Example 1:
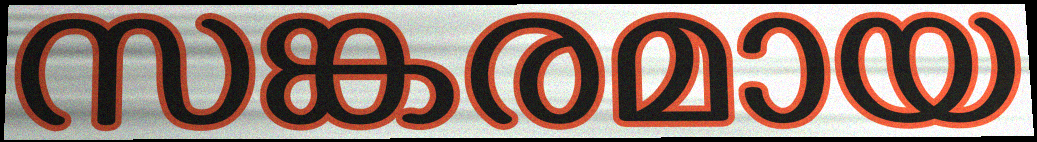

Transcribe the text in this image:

സങ്കരമായ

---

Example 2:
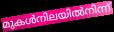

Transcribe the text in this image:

മുകൾനിലയിൽനിന്ന്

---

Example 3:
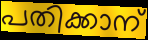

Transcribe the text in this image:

പതിക്കാന്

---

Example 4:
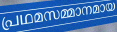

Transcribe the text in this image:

പ്രഥമസമ്മാനമായ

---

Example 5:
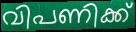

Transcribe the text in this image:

വിപണിക്ക്